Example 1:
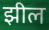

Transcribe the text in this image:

झील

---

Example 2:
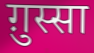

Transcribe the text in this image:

ग़ुस्सा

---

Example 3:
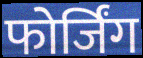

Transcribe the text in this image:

फोर्जिंग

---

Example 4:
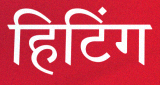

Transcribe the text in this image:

हिटिंग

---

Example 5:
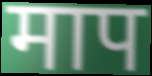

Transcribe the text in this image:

माप